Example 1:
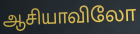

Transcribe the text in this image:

ஆசியாவிலோ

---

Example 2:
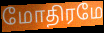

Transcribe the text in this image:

மோதிரமே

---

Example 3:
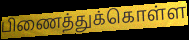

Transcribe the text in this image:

பிணைத்துக்கொள்ள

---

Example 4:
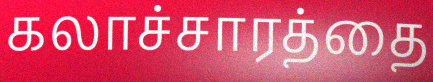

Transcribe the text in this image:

கலாச்சாரத்தை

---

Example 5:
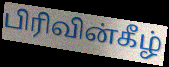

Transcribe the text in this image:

பிரிவின்கீழ்